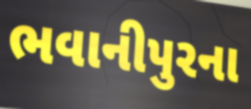
ભવાનીપુરના